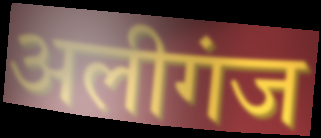
अलीगंज